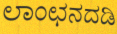
ಲಾಂಛನದಡಿ